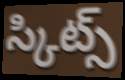
స్కిట్స్